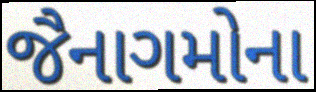
જૈનાગમોના